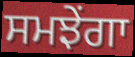
ਸਮਝੇਂਗਾ